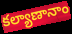
కల్యాణానాం